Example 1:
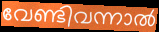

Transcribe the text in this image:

വേണ്ടിവന്നാൽ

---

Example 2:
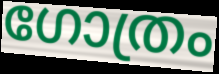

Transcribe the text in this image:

ഗോത്രം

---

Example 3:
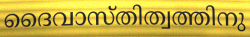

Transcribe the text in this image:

ദൈവാസ്തിത്വത്തിനു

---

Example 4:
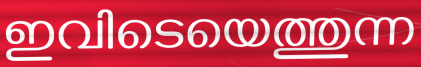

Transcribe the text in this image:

ഇവിടെയെത്തുന്ന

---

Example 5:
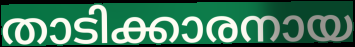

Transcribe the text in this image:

താടിക്കാരനായ